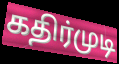
கதிர்முடி